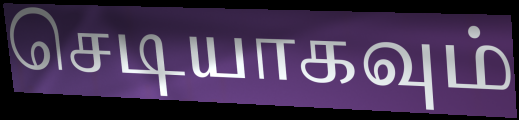
செடியாகவும்